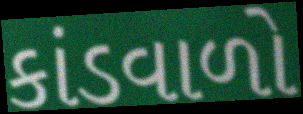
કાંડવાળો